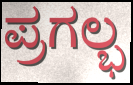
ಪ್ರಗಲ್ಭ